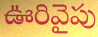
ఊరివైపు